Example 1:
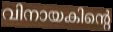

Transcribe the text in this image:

വിനായകിന്റെ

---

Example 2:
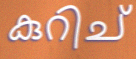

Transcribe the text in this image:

കുറിച്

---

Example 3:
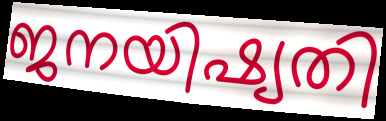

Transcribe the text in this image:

ജനയിഷ്യതി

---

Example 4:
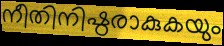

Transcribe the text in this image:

നീതിനിഷ്ഠരാകുകയും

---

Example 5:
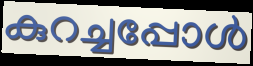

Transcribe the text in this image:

കുറച്ചപ്പോൾ